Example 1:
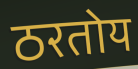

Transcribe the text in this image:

ठरतोय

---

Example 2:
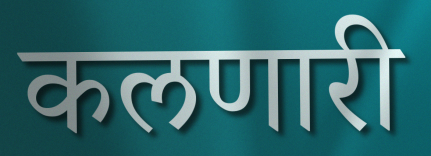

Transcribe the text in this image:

कलणारी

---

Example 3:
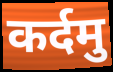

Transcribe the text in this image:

कर्दमु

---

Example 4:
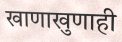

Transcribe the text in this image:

खाणाखुणाही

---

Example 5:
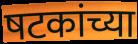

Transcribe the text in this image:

षटकांच्या